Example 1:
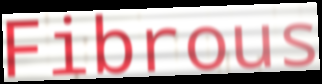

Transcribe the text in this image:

Fibrous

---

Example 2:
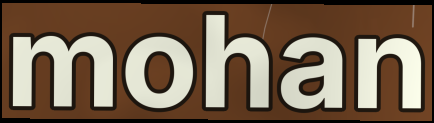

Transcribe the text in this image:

mohan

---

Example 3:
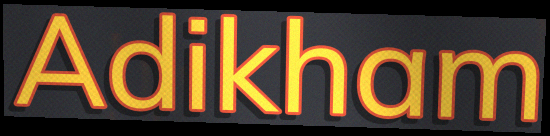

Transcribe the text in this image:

Adikham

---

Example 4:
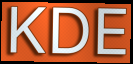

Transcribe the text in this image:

KDE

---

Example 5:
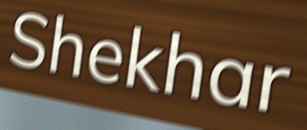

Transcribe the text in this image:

Shekhar